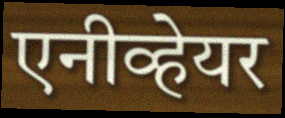
एनीव्हेयर